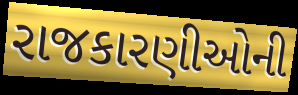
રાજકારણીઓની